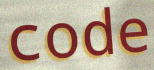
code